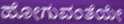
ಹೋಗುವಂತೆಯೇ